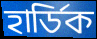
হাৰ্ডিক